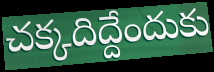
చక్కదిద్దేందుకు